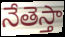
నేతెస్తా